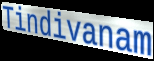
Tindivanam